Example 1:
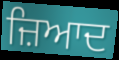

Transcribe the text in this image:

ਜ਼ਿਆਦ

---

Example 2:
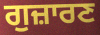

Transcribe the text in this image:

ਗੁਜ਼ਾਰਣ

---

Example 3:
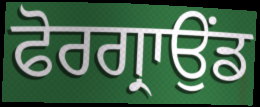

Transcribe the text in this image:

ਫੋਰਗ੍ਰਾਉਂਡ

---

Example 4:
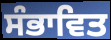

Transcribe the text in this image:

ਸੰਭਾਵਿਤ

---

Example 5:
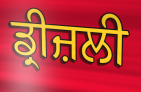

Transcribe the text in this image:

ਡ੍ਰੀਜ਼ਲੀ